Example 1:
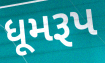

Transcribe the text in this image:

ધૂમરૂપ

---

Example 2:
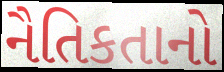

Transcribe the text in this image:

નૈતિકતાનો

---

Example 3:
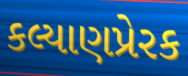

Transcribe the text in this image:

કલ્યાણપ્રેરક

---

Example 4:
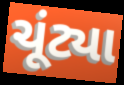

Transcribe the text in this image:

ચૂંટ્યા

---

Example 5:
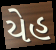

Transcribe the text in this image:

યેહ